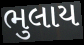
ભુલાય